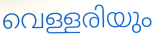
വെള്ളരിയും